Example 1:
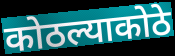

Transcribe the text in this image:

कोठल्याकोठे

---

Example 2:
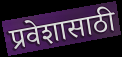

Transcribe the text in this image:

प्रवेशासाठी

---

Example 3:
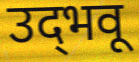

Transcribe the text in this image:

उद्‌भवू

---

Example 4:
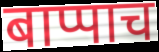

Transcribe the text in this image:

बाप्पाच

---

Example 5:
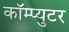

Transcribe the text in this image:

कॉम्प्युटर